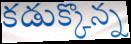
కడుక్కొన్న